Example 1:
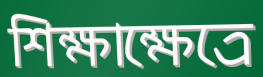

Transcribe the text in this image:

শিক্ষাক্ষেত্রে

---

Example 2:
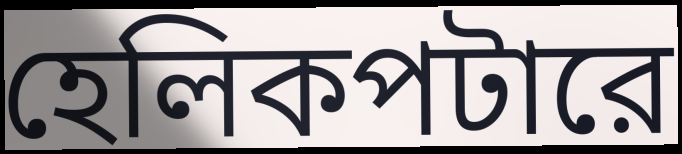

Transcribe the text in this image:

হেলিকপটারে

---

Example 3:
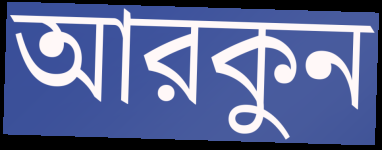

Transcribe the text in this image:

আরকুন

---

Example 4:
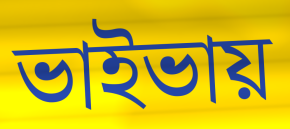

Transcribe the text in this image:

ভাইভায়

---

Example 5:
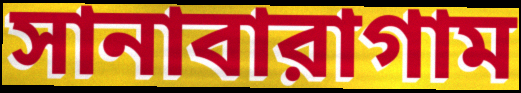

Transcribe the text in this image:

সানাবারাগাম